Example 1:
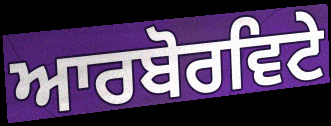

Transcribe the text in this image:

ਆਰਬੋਰਵਿਟੇ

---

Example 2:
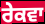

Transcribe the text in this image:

ਰੇਕਵਾ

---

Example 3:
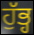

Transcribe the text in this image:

ਹੁੱਭ੍ਹ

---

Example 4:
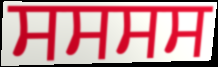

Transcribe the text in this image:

ਸਸਸਸ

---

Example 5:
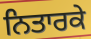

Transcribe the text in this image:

ਨਿਤਾਰਕੇ